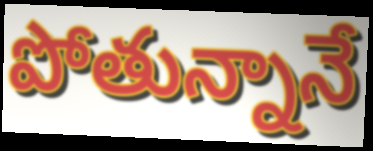
పోతున్నానే